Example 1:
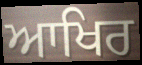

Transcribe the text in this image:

ਆਖਿਰ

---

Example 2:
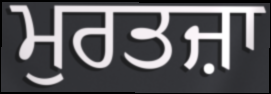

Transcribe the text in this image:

ਮੁਰਤਜ਼ਾ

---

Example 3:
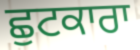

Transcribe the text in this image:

ਛੁਟਕਾਰਾ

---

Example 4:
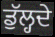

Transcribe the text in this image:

ਡੁੱਲ੍ਹਦੇ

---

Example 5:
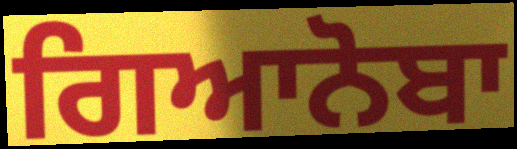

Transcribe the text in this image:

ਗਿਆਨੋਬਾ